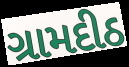
ગ્રામદીઠ